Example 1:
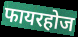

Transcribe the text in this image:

फायरहोज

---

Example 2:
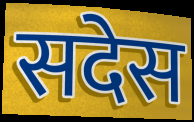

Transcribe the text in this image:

सदेस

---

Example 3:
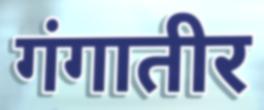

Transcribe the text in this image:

गंगातीर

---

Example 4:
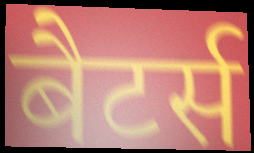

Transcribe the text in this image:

बैटर्स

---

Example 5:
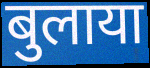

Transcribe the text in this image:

बुलाया